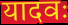
यादवः